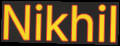
Nikhil